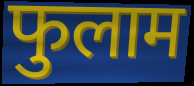
फुलाम